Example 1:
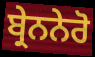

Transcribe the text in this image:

ਬ੍ਰੇਨਨੇਰੋ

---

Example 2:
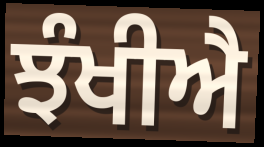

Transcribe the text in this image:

ਝੰਖੀਐ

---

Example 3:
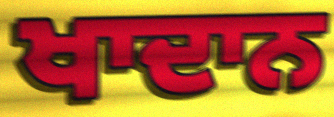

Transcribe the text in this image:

ਖਾਦਾਨ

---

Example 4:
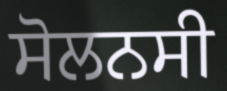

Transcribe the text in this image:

ਸੋਲਨਸੀ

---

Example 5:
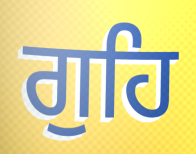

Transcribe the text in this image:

ਗੁਹਿ